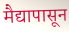
मैद्यापासून